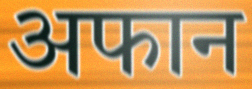
अफान